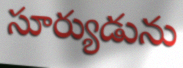
సూర్యుడును